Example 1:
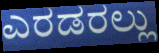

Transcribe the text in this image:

ಎರಡರಲ್ಲು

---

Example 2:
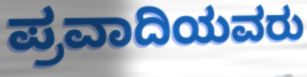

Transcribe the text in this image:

ಪ್ರವಾದಿಯವರು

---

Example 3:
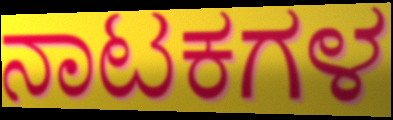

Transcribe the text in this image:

ನಾಟಕಗಳ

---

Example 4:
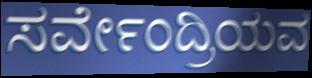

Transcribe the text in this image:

ಸರ್ವೇಂದ್ರಿಯವ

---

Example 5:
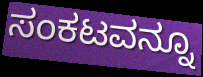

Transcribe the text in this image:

ಸಂಕಟವನ್ನೂ